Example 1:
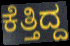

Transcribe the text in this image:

ಕೆತ್ತಿದ್ದ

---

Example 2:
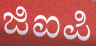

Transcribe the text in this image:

ಜಿಐಪಿ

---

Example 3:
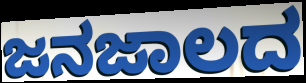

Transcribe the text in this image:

ಜನಜಾಲದ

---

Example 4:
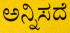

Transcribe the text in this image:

ಅನ್ನಿಸದೆ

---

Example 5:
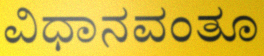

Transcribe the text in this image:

ವಿಧಾನವಂತೂ